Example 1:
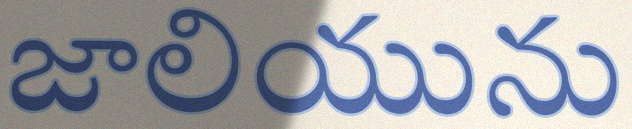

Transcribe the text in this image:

జాలియును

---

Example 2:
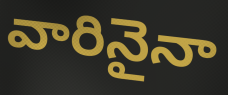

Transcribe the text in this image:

వారినైనా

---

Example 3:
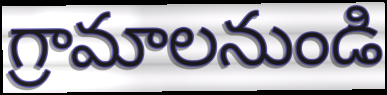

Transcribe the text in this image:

గ్రామాలనుండి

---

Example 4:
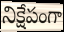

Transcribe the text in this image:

నిక్షేపంగా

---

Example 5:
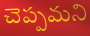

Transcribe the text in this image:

చెప్పమని